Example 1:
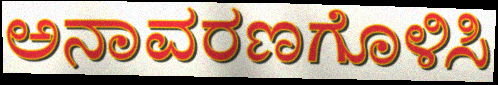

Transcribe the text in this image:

ಅನಾವರಣಗೊಳಿಸಿ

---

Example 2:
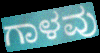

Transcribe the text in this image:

ಗಾಳವು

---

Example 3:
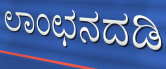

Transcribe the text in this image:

ಲಾಂಛನದಡಿ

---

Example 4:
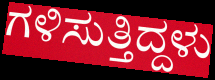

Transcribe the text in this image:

ಗಳಿಸುತ್ತಿದ್ದಳು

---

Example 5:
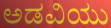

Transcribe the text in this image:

ಅಡವಿಯು